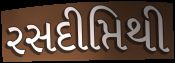
રસદીપ્તિથી